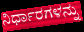
ನಿರ್ಧಾರಗಳನ್ನು